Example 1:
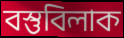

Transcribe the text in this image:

বস্তুবিলাক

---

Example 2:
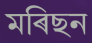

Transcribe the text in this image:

মৰিছন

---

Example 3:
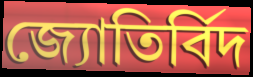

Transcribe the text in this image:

জ্যোতিৰ্বিদ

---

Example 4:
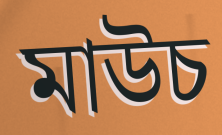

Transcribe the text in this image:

মাউচ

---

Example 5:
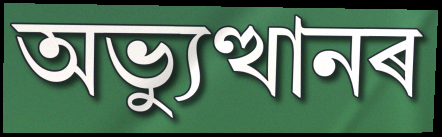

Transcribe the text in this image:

অভ্যুত্থানৰ